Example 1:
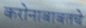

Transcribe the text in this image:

करोनाबाबतचे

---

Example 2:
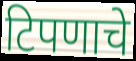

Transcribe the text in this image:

टिपणाचे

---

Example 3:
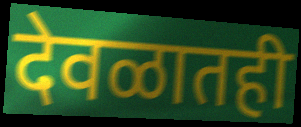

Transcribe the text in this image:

देवळातही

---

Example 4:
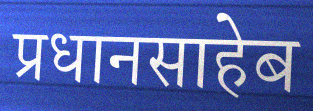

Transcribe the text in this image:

प्रधानसाहेब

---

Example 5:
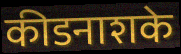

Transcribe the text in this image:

कीडनाशके